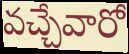
వచ్చేవారో